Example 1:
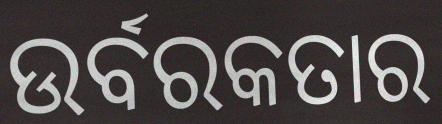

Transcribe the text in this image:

ଉର୍ବରକତାର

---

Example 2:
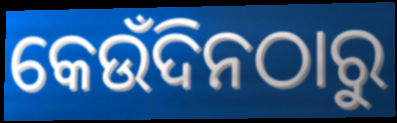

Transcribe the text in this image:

କେଉଁଦିନଠାରୁ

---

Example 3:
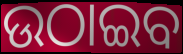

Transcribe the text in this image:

ଉଠାଇବ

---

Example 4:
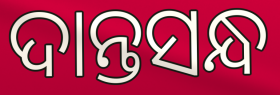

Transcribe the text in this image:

ଦାନ୍ତସନ୍ଧ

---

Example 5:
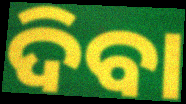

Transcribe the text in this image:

ଦିବା